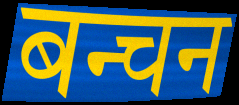
बन्चन